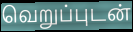
வெறுப்புடன்